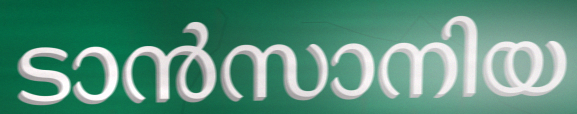
ടാൻസാനിയ